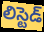
లిస్టెడ్